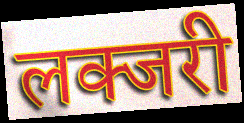
लक्जरी